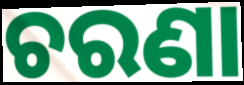
ଚରଣା